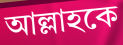
আল্লাহকে